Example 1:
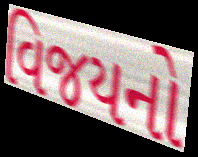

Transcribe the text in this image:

વિજયનો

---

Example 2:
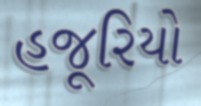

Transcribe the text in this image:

હજૂરિયો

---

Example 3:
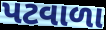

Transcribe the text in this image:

પટવાળા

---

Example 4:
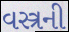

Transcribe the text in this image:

વસ્ત્રની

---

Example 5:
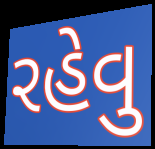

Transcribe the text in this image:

રહેવુ